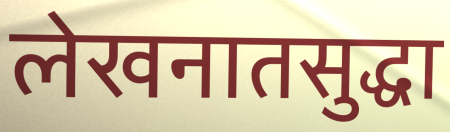
लेखनातसुद्धा